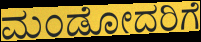
ಮಂಡೋದರಿಗೆ